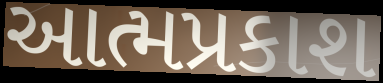
આત્મપ્રકાશ